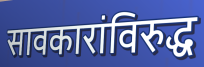
सावकारांविरुद्ध